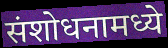
संशोधनामध्ये